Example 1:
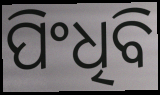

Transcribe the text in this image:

ପିଂଧିବି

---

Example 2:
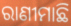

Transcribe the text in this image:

ରାଣୀମାଛି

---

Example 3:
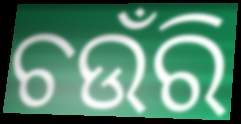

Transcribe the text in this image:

ଚଉଁରି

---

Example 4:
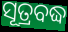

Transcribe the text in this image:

ସୂତ୍ରବଦ୍ଧ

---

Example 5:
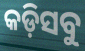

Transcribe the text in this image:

କଡ଼ିସବୁ